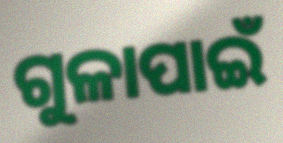
ଗୁଳାପାଇଁ